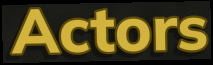
Actors